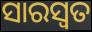
ସାରସ୍ବତ